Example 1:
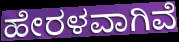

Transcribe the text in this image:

ಹೇರಳವಾಗಿವೆ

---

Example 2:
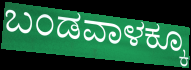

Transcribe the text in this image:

ಬಂಡವಾಳಕ್ಕೂ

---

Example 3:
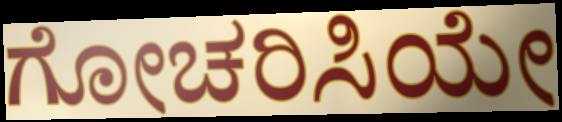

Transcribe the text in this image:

ಗೋಚರಿಸಿಯೇ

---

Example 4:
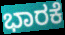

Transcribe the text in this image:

ಭಾರಕೆ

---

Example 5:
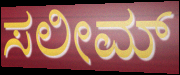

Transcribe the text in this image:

ಸಲೀಮ್